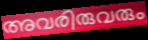
അവരിരുവരും